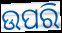
ଉପରି